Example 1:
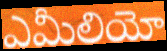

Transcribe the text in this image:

ఎమీలియో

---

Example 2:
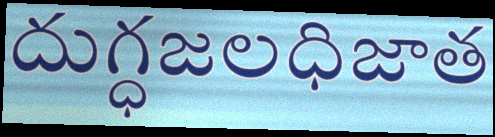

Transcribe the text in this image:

దుగ్ధజలధిజాత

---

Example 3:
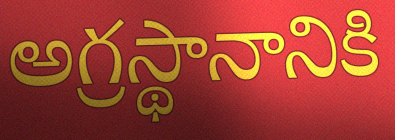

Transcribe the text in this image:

అగ్రస్థానానికి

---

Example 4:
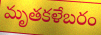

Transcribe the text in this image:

మృతకళేబరం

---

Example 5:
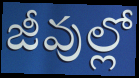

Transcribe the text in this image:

జీవుల్లో